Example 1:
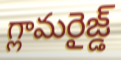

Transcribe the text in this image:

గ్లామరైజ్డ్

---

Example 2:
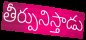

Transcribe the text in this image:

తీర్పునిస్తాడు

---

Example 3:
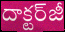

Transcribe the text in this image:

దాక్టర్‌జీ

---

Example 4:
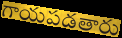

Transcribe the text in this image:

గాయపడతారు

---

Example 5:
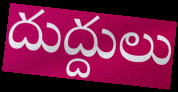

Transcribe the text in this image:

దుద్దులు